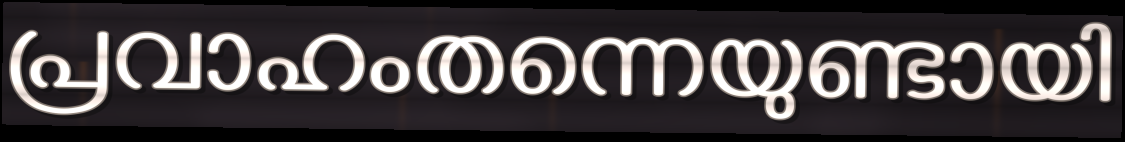
പ്രവാഹംതന്നെയുണ്ടായി